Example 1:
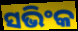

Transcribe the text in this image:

ସଭିଂକ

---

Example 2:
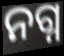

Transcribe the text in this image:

ନଗ୍ନ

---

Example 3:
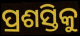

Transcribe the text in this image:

ପ୍ରଶସ୍ତିକୁ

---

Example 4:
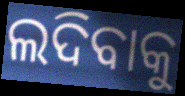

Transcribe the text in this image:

ଲଦିବାକୁ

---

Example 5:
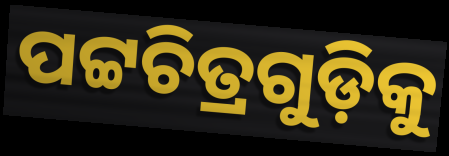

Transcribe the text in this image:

ପଟ୍ଟଚିତ୍ରଗୁଡ଼ିକୁ